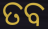
ତବ